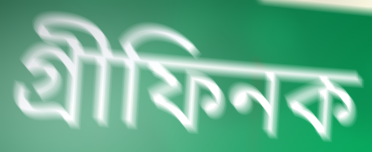
গ্ৰীফিনক